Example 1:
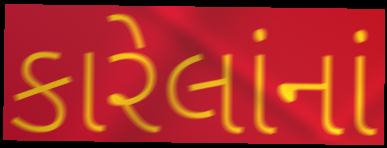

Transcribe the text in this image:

કારેલાંનાં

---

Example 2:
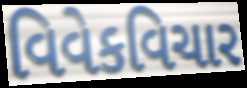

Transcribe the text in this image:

વિવેકવિચાર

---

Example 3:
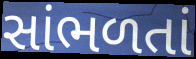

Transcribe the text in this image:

સાંભળતાં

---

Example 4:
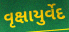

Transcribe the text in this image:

વૃક્ષાયુર્વેદ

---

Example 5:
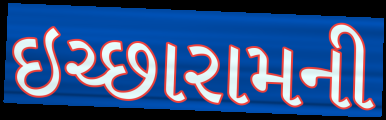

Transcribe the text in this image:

ઇચ્છારામની